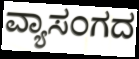
ವ್ಯಾಸಂಗದ